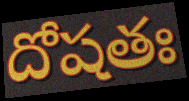
దోషతః